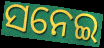
ସନେଇ